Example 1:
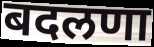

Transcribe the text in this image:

बदलणा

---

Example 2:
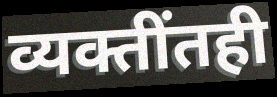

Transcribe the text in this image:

व्यक्तींतही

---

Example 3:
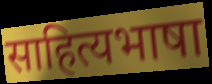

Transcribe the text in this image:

साहित्यभाषा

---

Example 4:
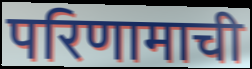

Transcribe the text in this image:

परिणामाची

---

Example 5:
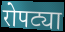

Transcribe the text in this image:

रोपट्या